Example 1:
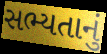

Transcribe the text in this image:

સભ્યતાનું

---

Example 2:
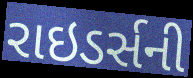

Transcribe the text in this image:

રાઇડર્સની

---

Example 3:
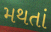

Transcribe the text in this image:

મથતાં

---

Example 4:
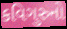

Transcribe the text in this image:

કવિગુરુનો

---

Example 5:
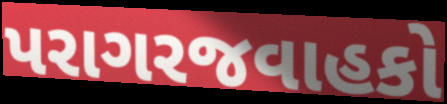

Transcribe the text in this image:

પરાગરજવાહકો